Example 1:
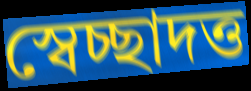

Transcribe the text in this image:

স্বেচ্ছাদত্ত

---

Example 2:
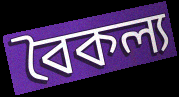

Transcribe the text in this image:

বৈকল্য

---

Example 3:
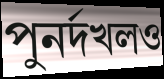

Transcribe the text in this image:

পুনর্দখলও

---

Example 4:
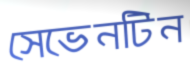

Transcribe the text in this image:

সেভেনটিন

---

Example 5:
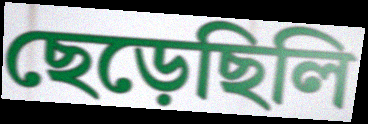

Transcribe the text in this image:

ছেড়েছিলি